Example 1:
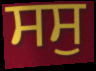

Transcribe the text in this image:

ਸਸੁ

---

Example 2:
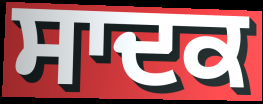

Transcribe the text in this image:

ਸਾਦਕ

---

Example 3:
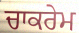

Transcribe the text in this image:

ਚਾਕਰੇਮ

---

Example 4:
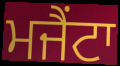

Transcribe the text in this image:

ਮਜੈਂਟਾ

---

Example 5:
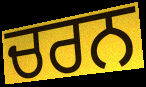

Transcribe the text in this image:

ਚਰਨ